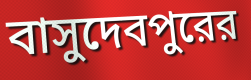
বাসুদেবপুরের